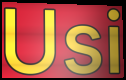
Usi